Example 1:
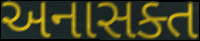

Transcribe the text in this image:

અનાસક્ત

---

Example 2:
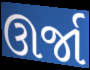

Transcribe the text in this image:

ઊર્જા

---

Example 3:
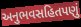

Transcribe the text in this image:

અનુભવસહિતપણું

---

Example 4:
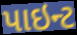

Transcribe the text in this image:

પાઇન્ટ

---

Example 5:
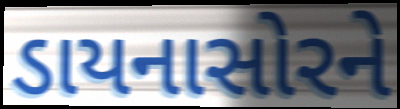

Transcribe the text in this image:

ડાયનાસોરને